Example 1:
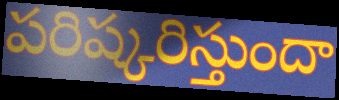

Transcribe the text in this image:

పరిష్కరిస్తుందా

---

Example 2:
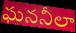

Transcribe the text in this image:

ఘననీలా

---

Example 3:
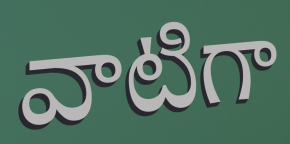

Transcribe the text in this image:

వాటిగా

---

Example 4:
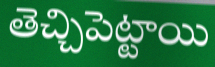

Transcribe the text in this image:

తెచ్చిపెట్టాయి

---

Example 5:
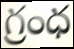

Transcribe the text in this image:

గ్రంధ